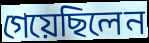
গেয়েছিলেন